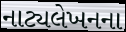
નાટ્યલેખનના